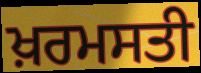
ਖ਼ਰਮਸਤੀ